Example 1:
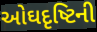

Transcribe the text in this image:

ઓઘદૃષ્ટિની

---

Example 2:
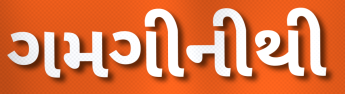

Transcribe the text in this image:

ગમગીનીથી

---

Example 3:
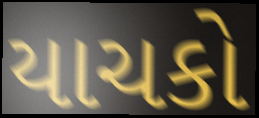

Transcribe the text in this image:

યાચકો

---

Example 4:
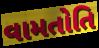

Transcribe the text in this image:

વામતોતિ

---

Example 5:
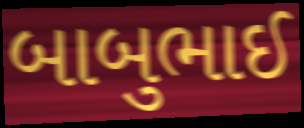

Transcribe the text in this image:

બાબુભાઈ